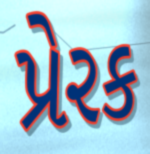
પ્રેરક